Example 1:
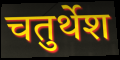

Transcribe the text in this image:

चतुर्थेश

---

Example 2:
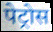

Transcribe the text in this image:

पेट्रोस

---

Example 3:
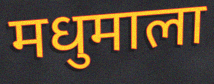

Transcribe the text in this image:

मधुमाला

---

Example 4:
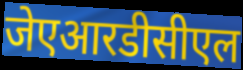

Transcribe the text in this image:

जेएआरडीसीएल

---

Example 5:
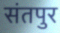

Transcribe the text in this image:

संतपुर